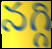
నగ్గి